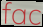
fac